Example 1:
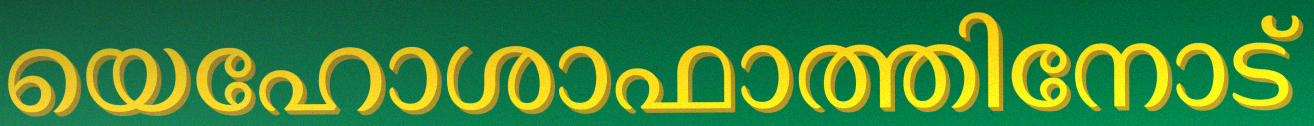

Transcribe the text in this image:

യെഹോശാഫാത്തിനോട്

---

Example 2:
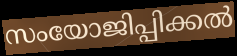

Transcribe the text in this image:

സംയോജിപ്പിക്കൽ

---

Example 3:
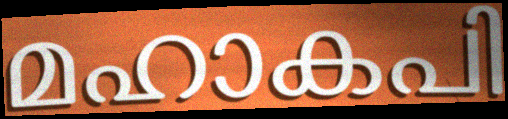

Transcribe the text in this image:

മഹാകപി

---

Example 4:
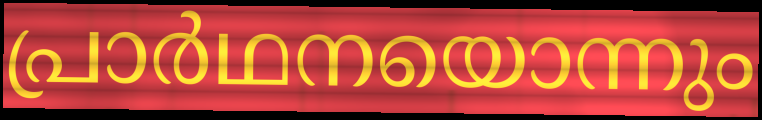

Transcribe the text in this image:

പ്രാർഥനയൊന്നും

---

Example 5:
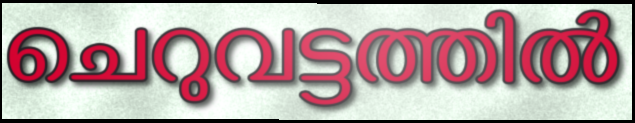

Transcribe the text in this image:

ചെറുവട്ടത്തിൽ